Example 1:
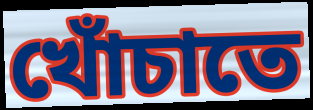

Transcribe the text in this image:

খোঁচাতে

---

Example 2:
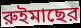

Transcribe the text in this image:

রুইমাছের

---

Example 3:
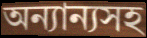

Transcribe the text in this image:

অন্যান্যসহ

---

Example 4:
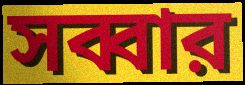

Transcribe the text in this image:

সব্বার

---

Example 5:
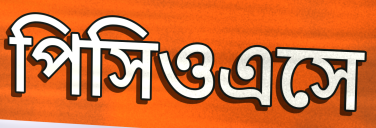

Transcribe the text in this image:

পিসিওএসে